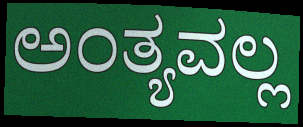
ಅಂತ್ಯವಲ್ಲ